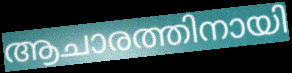
ആചാരത്തിനായി